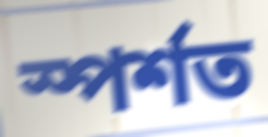
স্পৰ্শত